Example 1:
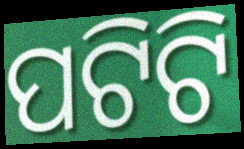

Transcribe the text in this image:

ପଟିଟି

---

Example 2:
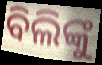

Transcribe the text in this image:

ବିଲିଙ୍କୁ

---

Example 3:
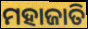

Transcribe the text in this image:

ମହାଜାତି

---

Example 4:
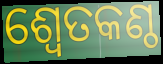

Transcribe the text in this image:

ଶ୍ୱେତକଣ୍ଠ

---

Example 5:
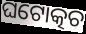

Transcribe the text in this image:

ଘଟୋତ୍କଚ